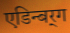
एडिन्बर्ग